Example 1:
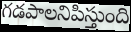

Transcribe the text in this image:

గడపాలనిపిస్తుంది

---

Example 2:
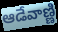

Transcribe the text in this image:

ఆడేవాణ్ణి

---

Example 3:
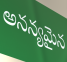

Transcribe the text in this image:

అనన్యమైన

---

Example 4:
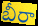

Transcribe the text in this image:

బీరా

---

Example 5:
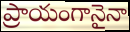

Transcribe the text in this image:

ప్రాయంగానైనా